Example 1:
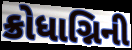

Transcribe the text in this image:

ક્રોધાગ્નિની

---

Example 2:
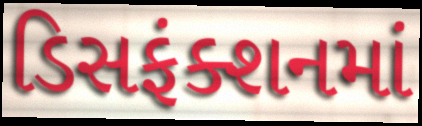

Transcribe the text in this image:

ડિસફંક્શનમાં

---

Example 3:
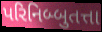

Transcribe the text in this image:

પરિનિબ્બુતત્તા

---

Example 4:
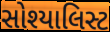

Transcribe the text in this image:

સોશ્યાલિસ્ટ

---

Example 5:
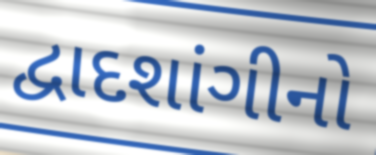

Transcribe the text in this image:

દ્વાદશાંગીનો